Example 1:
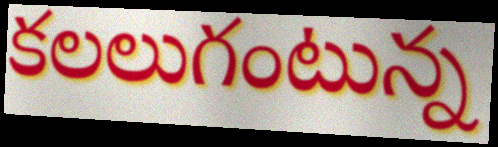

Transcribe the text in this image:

కలలుగంటున్న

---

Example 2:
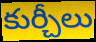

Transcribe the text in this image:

కుర్చీలు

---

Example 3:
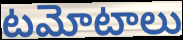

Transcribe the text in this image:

టమోటాలు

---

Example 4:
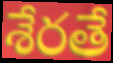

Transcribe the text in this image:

శేరతే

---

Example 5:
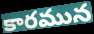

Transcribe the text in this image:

కారమున